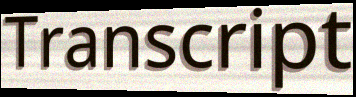
Transcript